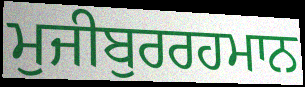
ਮੁਜੀਬੁਰਰਹਮਾਨ